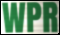
WPR